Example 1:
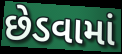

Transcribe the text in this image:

છેડવામાં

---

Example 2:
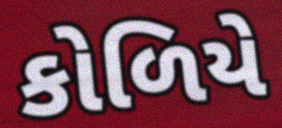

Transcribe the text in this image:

કોળિયે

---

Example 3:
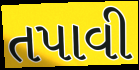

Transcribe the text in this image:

તપાવી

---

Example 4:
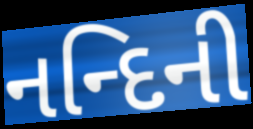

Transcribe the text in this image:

નન્દિની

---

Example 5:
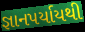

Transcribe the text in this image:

જ્ઞાનપર્યાયથી